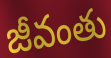
జీవంతు